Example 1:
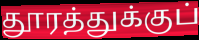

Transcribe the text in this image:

தூரத்துக்குப்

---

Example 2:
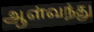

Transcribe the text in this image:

ஆள்வந்து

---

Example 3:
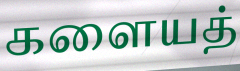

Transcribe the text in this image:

களையத்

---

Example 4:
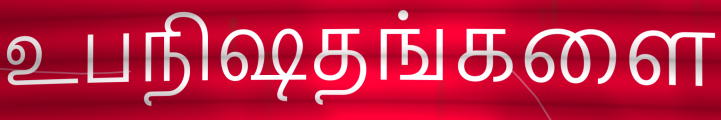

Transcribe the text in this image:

உபநிஷதங்களை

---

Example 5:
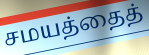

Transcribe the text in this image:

சமயத்தைத்